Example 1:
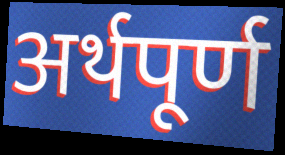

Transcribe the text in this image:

अर्थपूर्ण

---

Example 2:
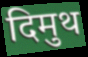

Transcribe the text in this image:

दिमुथ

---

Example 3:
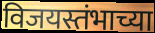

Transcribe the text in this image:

विजयस्तंभाच्या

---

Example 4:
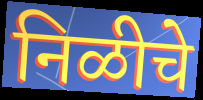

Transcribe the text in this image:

निळीचे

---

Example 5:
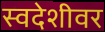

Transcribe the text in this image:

स्वदेशीवर